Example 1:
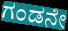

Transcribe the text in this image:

ಗಂಡನೇ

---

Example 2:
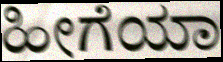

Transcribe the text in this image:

ಹೀಗೆಯಾ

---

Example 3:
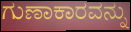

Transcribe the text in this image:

ಗುಣಾಕಾರವನ್ನು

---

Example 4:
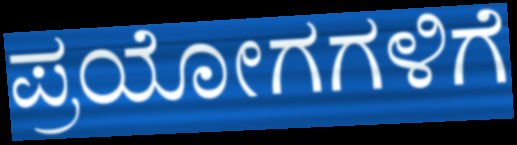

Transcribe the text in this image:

ಪ್ರಯೋಗಗಳಿಗೆ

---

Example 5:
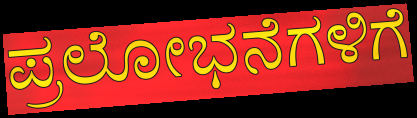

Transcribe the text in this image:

ಪ್ರಲೋಭನೆಗಳಿಗೆ